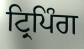
ਟ੍ਰਿਪਿੰਗ